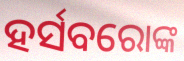
ହର୍ସବରୋଙ୍କ